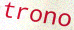
trono